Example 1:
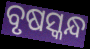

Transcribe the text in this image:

ବୃଷସ୍କନ୍ଧ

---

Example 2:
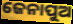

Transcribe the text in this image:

ଜେନାପୁଅ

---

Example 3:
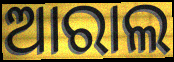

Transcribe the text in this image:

ଆରାଲ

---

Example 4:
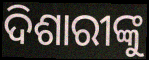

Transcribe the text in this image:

ଦିଶାରୀଙ୍କୁ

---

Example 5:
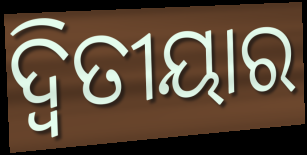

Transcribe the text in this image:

ଦ୍ଵିତୀୟାର